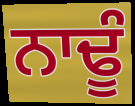
ਨਾਢੂੰ